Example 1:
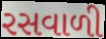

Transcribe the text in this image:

રસવાળી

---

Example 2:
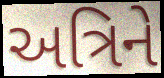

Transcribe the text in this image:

અત્રિને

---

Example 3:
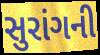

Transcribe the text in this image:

સુરાંગની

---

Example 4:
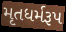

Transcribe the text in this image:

મૃતધર્મરૂપ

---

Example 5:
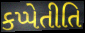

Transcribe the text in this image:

કપ્પેતીતિ